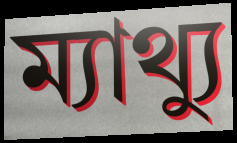
ম্যাথ্যু